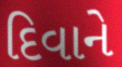
દિવાને